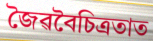
জৈৱবৈচিত্ৰতাত